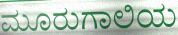
ಮೂರುಗಾಲಿಯ